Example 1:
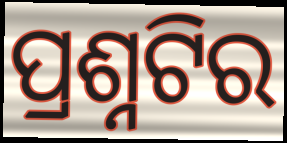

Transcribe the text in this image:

ପ୍ରଶ୍ନଟିର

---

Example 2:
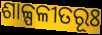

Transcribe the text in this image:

ଶାଳ୍ପଳୀତରୂଃ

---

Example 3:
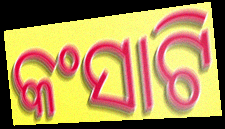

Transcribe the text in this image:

କଂସାଟି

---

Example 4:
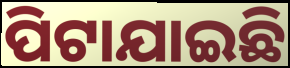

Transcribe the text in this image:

ପିଟାଯାଇଛି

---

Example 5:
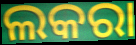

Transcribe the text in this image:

ଲକରା